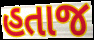
હતાજ